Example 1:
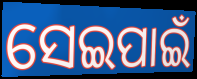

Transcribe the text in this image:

ସେଇପାଇଁ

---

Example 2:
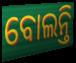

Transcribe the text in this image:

ବୋଲନ୍ତି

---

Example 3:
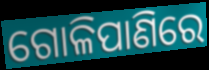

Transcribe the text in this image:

ଗୋଳିପାଣିରେ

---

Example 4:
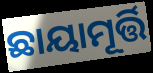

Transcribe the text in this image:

ଛାୟାମୂର୍ତ୍ତି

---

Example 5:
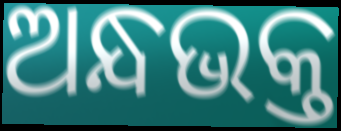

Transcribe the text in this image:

ଅନ୍ଧଭକ୍ତ